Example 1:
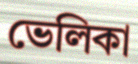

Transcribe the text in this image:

ভেলিকা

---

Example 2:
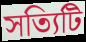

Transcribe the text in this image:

সত্যিটি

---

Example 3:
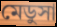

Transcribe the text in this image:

মেডুসা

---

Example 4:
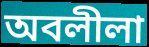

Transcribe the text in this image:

অবলীলা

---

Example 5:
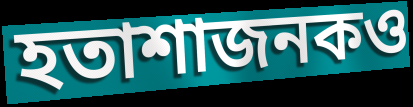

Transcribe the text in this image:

হতাশাজনকও